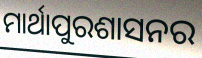
ମାର୍ଥାପୁରଶାସନର